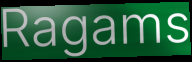
Ragams